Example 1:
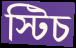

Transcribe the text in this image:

স্টিচ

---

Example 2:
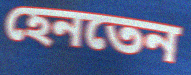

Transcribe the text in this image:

হেনতেন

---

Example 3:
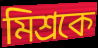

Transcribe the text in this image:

মিশ্রকে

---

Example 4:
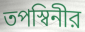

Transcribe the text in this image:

তপস্বিনীর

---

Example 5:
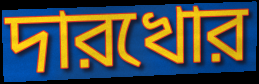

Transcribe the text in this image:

দারখোর